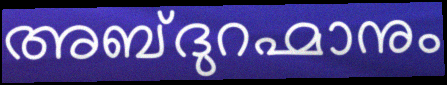
അബ്ദുറഹ്മാനും